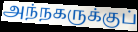
அந்நகருக்குப்